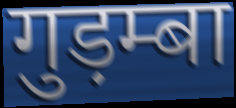
गुड़म्बा